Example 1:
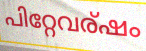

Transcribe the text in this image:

പിറ്റേവര്ഷം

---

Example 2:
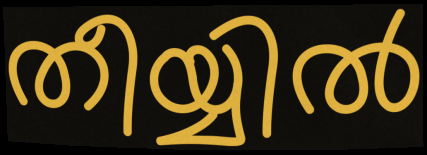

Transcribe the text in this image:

തീയ്യിൽ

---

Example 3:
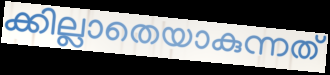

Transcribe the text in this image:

ക്കില്ലാതെയാകുന്നത്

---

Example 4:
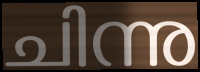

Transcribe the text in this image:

ചിന്നു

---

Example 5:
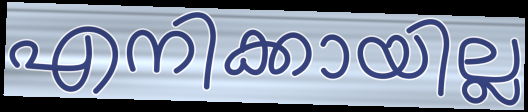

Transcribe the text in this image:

എനിക്കായില്ല